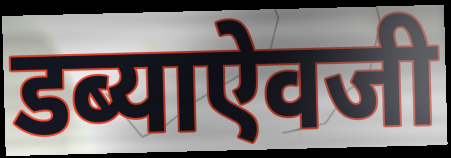
डब्याऐवजी